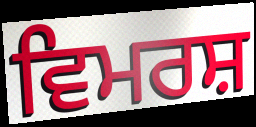
ਵਿਮਰਸ਼